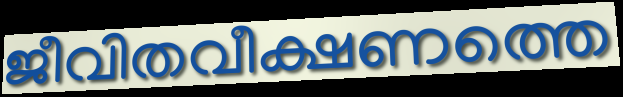
ജീവിതവീക്ഷണത്തെ